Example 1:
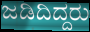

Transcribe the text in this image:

ಜಡಿದಿದ್ದರು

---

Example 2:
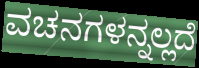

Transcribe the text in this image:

ವಚನಗಳನ್ನಲ್ಲದೆ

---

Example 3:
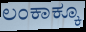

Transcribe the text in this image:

ಲಂಕಾಕ್ಕೂ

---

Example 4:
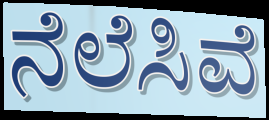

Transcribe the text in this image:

ನೆಲೆಸಿವೆ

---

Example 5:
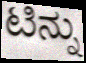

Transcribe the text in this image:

ಟಿನ್ನು